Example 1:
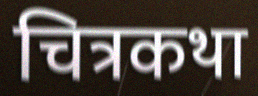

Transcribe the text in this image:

चित्रकथा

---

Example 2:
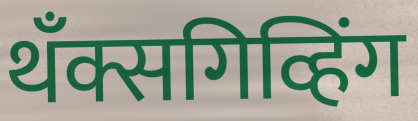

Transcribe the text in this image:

थॅँक्सगिव्हिंग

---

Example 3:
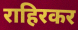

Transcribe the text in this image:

राहिरकर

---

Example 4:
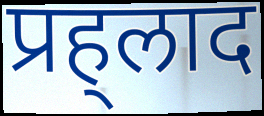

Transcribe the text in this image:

प्रह्‌लाद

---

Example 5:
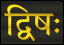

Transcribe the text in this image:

द्विषः